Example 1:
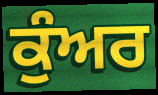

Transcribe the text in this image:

ਕੁੰਅਰ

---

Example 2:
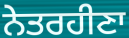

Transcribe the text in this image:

ਨੇਤਰਹੀਣਾ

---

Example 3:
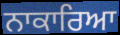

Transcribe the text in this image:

ਨਾਕਾਰਿਆ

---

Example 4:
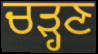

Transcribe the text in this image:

ਚੜ੍ਹਣ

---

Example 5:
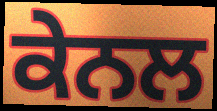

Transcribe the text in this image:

ਕੇਨਲ